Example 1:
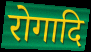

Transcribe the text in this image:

रोगादि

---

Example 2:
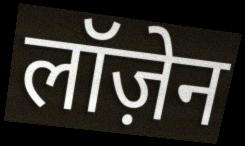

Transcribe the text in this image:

लॉज़ेन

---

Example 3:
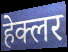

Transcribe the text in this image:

हेक्लर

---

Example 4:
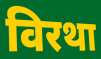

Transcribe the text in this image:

विरथा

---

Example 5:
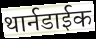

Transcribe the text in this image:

थार्नडाईक